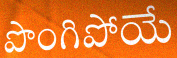
పొంగిపోయే